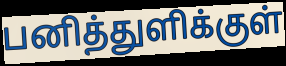
பனித்துளிக்குள்